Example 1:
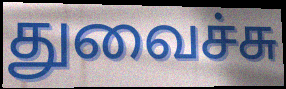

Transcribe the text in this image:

துவைச்சு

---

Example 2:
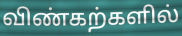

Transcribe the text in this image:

விண்கற்களில்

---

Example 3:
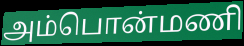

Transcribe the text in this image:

அம்பொன்மணி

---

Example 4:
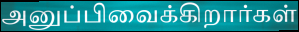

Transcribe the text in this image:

அனுப்பிவைக்கிறார்கள்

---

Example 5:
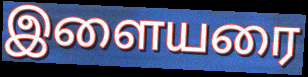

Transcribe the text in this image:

இளையரை